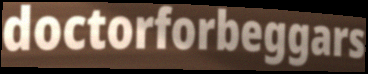
doctorforbeggars